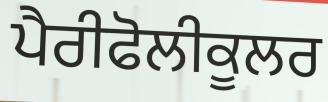
ਪੈਰੀਫੋਲੀਕੂਲਰ